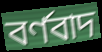
বৰ্ণবাদ